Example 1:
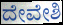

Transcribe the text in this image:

ದೇವೇಶಿ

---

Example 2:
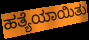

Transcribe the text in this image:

ಹತ್ಯೆಯಾಯಿತು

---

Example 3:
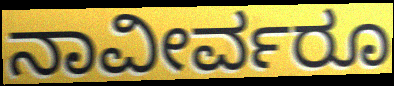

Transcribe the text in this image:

ನಾವೀರ್ವರೂ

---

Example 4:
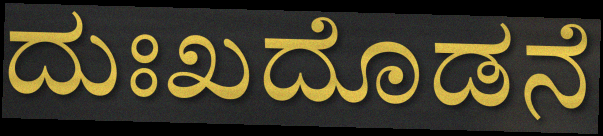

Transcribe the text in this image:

ದುಃಖದೊಡನೆ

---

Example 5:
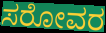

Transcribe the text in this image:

ಸರೋವರ